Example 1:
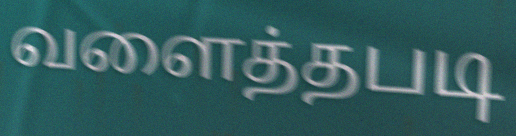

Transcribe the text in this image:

வளைத்தபடி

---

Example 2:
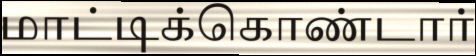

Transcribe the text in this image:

மாட்டிக்கொண்டார்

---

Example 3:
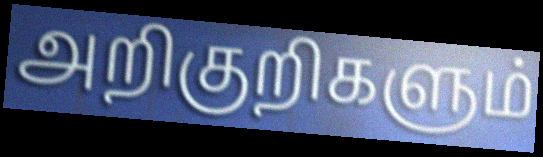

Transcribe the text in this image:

அறிகுறிகளும்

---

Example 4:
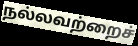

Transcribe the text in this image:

நல்லவற்றைச்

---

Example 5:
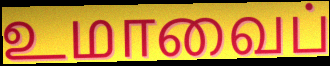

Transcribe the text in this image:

உமாவைப்